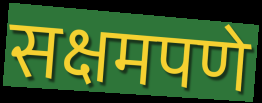
सक्षमपणे